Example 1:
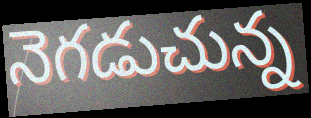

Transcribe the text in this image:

నెగడుచున్న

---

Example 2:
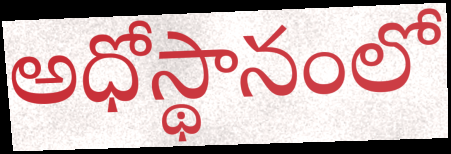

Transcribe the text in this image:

అధోస్థానంలో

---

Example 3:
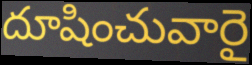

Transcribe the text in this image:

దూషించువారై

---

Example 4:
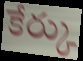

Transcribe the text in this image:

కేర్కు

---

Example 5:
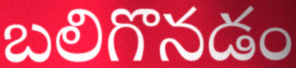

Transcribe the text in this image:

బలిగొనడం